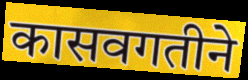
कासवगतीने